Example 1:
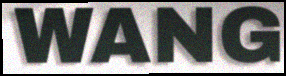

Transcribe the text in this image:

WANG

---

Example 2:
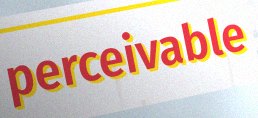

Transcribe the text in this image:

perceivable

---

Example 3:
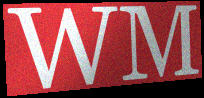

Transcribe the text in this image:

WM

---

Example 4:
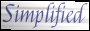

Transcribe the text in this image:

Simplified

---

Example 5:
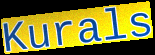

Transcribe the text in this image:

Kurals